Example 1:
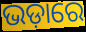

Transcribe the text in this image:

ଭଡ଼ାରେ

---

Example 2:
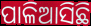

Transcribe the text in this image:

ପାଳିଆସିଛି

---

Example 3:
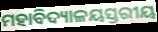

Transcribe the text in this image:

ମହାବିଦ୍ୟାଳୟସ୍ତରୀୟ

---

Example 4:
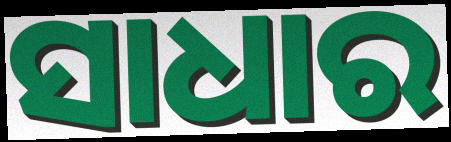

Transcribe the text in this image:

ସାଧାର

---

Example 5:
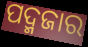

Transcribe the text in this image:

ପଦ୍ମଜାର